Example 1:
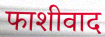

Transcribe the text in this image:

फाशीवाद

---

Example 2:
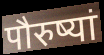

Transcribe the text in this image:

पौरुष्यां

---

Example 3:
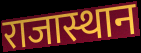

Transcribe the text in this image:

राजास्थान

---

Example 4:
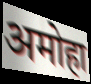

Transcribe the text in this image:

अमोहा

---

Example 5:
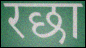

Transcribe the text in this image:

रछा